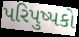
પરિપુષ્પકો